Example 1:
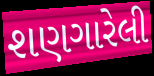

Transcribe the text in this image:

શણગારેલી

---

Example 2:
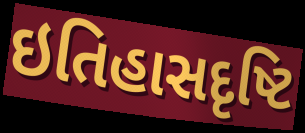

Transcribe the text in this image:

ઇતિહાસદૃષ્ટિ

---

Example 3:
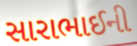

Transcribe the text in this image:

સારાભાઈની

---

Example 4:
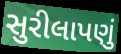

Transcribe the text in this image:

સુરીલાપણું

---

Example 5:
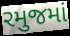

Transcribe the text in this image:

રમુજમાં